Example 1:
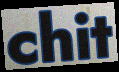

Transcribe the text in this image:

chit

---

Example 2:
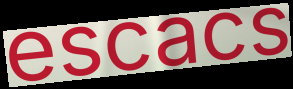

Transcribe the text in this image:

escacs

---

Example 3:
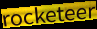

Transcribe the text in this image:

rocketeer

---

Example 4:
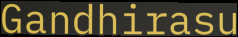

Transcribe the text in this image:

Gandhirasu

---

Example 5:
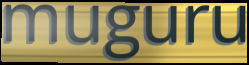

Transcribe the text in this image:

muguru